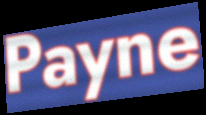
Payne